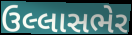
ઉલ્લાસભેર